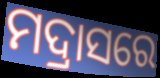
ମଦ୍ରାସରେ